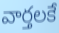
వార్తలకే